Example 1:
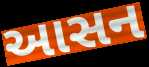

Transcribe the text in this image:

આસન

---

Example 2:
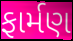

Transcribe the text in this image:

ફાર્મણ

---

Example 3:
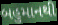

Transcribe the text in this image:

બહુમાનથી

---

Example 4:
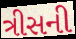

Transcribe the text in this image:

ત્રીસની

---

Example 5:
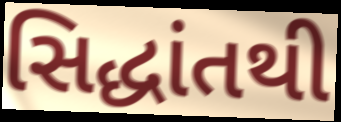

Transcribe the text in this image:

સિદ્ધાંતથી